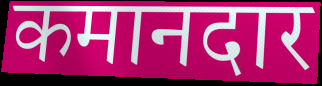
कमानदार